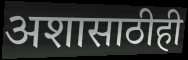
अशासाठीही